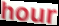
hour